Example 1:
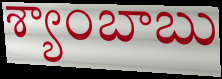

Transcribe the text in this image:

శ్యాంబాబు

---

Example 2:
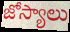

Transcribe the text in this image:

జోస్యాలు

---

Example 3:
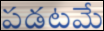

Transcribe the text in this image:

పడటమే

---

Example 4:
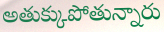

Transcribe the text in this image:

అతుక్కుపోతున్నారు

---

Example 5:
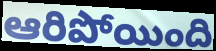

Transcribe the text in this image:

ఆరిపోయింది